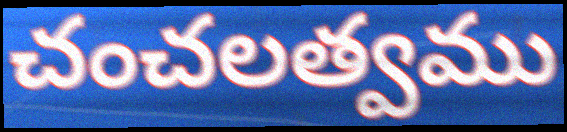
చంచలత్వము